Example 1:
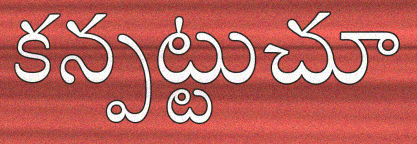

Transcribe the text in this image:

కన్పట్టుచూ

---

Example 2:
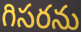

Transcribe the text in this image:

గిసరను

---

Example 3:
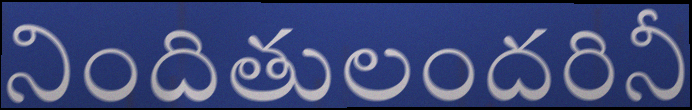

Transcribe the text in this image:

నిందితులందరినీ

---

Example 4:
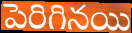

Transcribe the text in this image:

పెరిగినయి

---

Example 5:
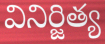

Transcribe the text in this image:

వినిర్జిత్య